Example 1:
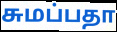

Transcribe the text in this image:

சுமப்பதா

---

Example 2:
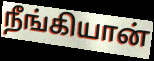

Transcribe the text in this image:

நீங்கியான்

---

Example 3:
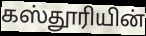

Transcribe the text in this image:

கஸ்தூரியின்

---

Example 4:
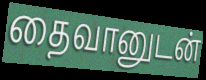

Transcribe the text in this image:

தைவானுடன்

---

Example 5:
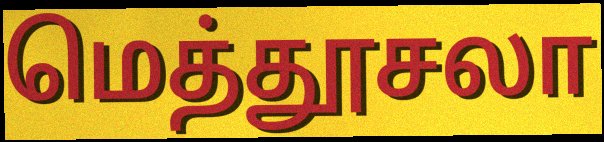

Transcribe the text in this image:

மெத்தூசலா